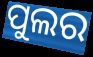
ପୁଲର